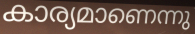
കാര്യമാണെന്നു